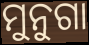
ମୁନୁଗା